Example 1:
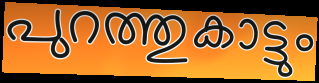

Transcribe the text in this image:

പുറത്തുകാട്ടും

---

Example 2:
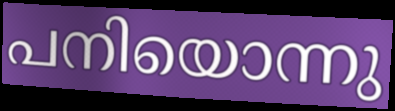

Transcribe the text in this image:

പനിയൊന്നു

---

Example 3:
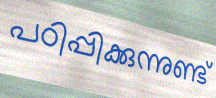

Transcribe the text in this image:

പഠിപ്പിക്കുന്നുണ്ട്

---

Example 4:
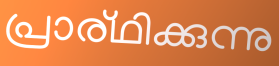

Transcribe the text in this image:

പ്രാര്ഥിക്കുന്നു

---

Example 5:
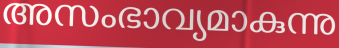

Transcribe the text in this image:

അസംഭാവ്യമാകുന്നു